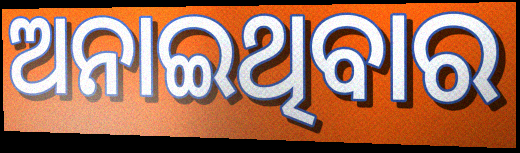
ଅନାଇଥିବାର